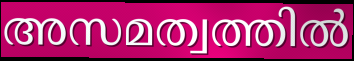
അസമത്വത്തിൽ